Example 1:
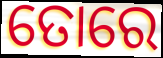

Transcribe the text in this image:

ତୋରେ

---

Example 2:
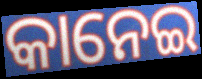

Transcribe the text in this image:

କାନେଇ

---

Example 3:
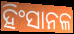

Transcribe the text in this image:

ହିଂସାନଳ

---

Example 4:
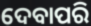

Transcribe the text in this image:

ଦେବାପରି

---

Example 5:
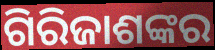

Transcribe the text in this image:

ଗିରିଜାଶଙ୍କର